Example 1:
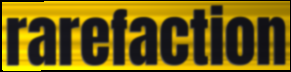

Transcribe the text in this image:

rarefaction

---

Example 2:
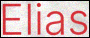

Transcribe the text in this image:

Elias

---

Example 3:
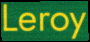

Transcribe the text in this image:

Leroy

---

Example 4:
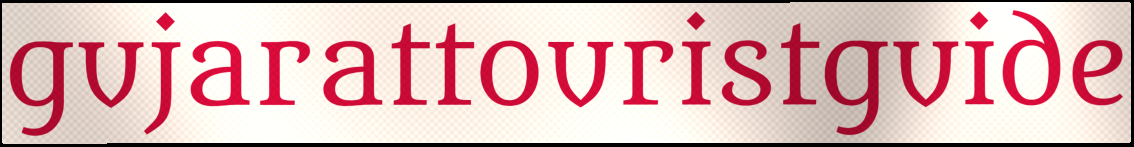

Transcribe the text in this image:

gujarattouristguide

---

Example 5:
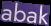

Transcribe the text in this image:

abak